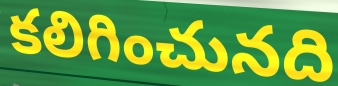
కలిగించునది